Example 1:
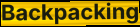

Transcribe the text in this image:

Backpacking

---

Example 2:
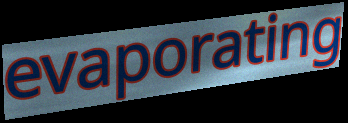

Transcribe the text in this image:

evaporating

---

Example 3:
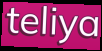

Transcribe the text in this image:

teliya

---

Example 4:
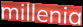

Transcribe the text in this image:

millenia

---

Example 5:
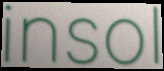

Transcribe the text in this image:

insol